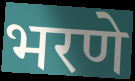
भरणे